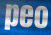
peo